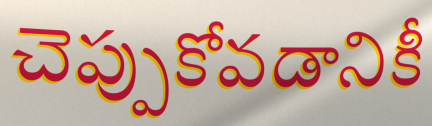
చెప్పుకోవడానికీ